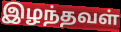
இழந்தவள்